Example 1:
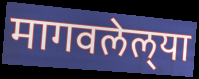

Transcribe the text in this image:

मागवलेल्या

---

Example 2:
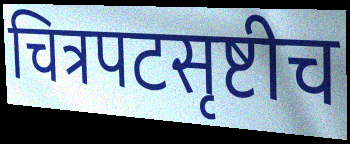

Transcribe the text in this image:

चित्रपटसृष्टीच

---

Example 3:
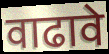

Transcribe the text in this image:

वाढावे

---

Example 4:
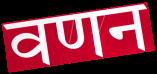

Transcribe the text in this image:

वणन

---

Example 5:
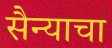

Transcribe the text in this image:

सैन्याचा